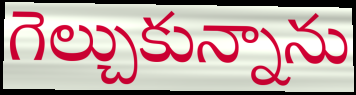
గెల్చుకున్నాను